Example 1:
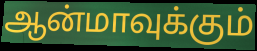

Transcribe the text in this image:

ஆன்மாவுக்கும்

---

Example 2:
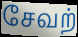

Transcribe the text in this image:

சேவற்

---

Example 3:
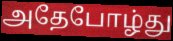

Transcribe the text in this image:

அதேபோழ்து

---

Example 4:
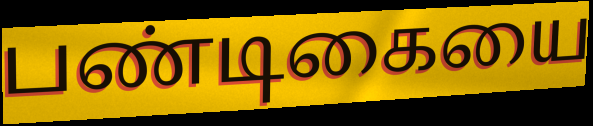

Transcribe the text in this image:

பண்டிகையை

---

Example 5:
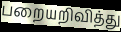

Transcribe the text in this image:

பறையறிவித்து